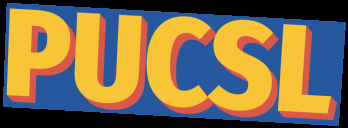
PUCSL